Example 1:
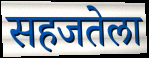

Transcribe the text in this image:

सहजतेला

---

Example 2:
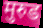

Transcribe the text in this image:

मुरुड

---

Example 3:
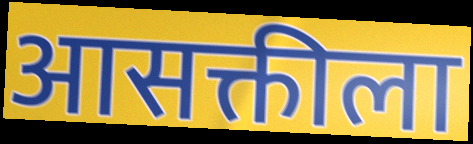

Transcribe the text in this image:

आसक्तीला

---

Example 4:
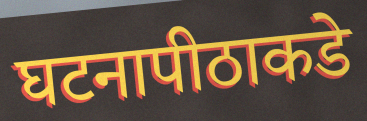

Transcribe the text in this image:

घटनापीठाकडे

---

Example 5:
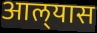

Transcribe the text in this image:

आल्यास